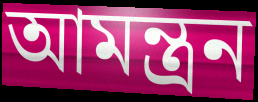
আমন্ত্রন